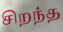
சிறந்த